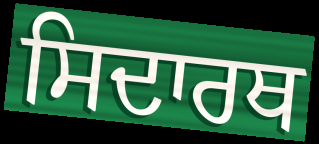
ਸਿਦਾਰਥ